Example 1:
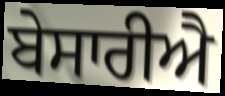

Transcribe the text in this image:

ਬੇਸਾਰੀਐ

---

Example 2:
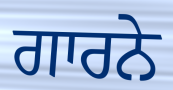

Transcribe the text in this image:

ਗਾਰਨੇ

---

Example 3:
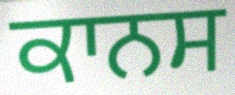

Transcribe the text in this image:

ਕਾਨਸ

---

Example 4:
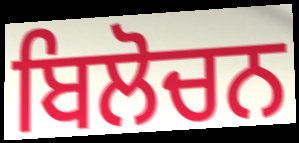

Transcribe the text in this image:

ਬਿਲੋਚਨ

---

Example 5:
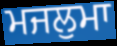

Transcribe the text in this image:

ਮਜਲੁਮਾ